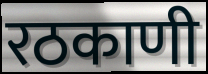
रठकाणी